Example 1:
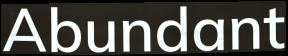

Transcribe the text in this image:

Abundant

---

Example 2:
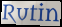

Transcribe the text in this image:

Rutin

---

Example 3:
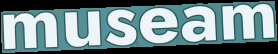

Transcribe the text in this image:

museam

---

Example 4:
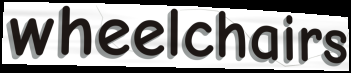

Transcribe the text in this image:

wheelchairs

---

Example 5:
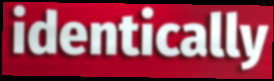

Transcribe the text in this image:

identically